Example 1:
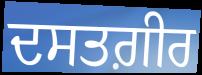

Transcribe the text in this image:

ਦਸਤਗ਼ੀਰ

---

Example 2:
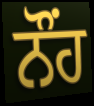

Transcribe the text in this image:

ਨੌੰਹ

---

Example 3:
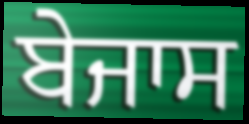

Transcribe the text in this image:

ਬੇਜਾਸ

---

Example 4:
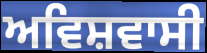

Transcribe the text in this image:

ਅਵਿਸ਼ਵਾਸੀ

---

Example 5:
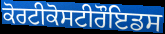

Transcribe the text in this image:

ਕੋਰਟੀਕੋਸਟੀਰੌਇਡਸ